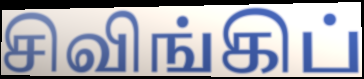
சிவிங்கிப்